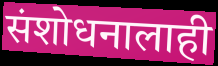
संशोधनालाही